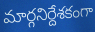
మార్గనిర్దేశకంగా